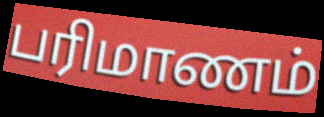
பரிமாணம்